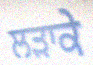
ਲੜਾਕੇ